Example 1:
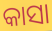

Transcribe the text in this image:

କାସା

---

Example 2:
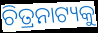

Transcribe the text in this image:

ଚିତ୍ରନାଟ୍ୟକୁ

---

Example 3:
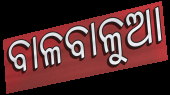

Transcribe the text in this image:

ବାଳବାଳୁଆ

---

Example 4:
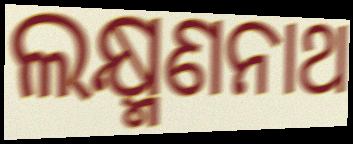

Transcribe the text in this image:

ଲକ୍ଷ୍ମଣନାଥ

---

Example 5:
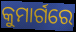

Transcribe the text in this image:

କୁମାର୍ଗରେ